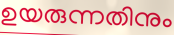
ഉയരുന്നതിനും